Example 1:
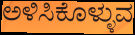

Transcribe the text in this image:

ಅಳಿಸಿಕೊಳ್ಳುವ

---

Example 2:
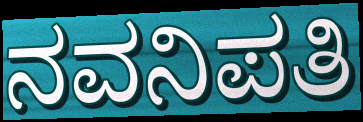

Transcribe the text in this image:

ನವನಿಪತಿ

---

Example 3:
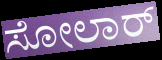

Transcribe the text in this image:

ಸೋಲಾರ್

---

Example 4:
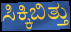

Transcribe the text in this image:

ಸಿಕ್ಕಿಬಿತ್ತು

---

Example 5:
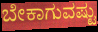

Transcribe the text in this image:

ಬೇಕಾಗುವಷ್ಟು